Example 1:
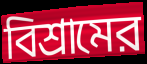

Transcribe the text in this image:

বিশ্রামের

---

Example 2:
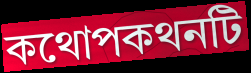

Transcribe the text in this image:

কথোপকথনটি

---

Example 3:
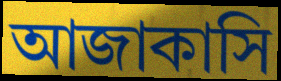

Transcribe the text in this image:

আজাকাসি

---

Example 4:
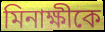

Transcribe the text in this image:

মিনাক্ষীকে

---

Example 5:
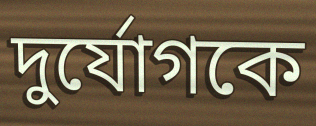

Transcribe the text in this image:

দুর্যোগকে